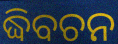
ଦ୍ଧିବଚନ